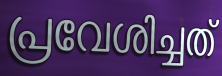
പ്രവേശിച്ചത്